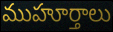
ముహూర్తాలు